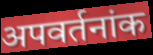
अपवर्तनांक